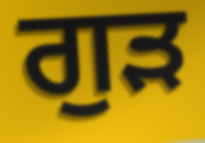
ਗੁੜ